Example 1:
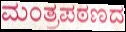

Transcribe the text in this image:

ಮಂತ್ರಪಠಣದ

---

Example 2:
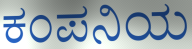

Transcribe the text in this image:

ಕಂಪನಿಯ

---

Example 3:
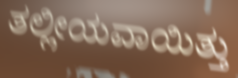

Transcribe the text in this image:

ತಲ್ಲೀಯವಾಯಿತ್ತು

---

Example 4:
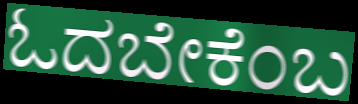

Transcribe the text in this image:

ಓದಬೇಕೆಂಬ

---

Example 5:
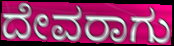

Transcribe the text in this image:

ದೇವರಾಗು